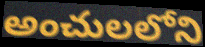
అంచులలోని